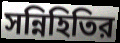
সন্নিহিতির